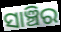
ସାଞ୍ଚିର